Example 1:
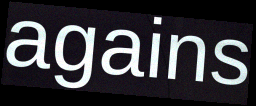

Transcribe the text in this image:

agains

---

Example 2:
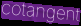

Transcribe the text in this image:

cotangent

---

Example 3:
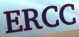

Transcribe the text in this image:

ERCC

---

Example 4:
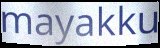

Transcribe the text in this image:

mayakku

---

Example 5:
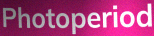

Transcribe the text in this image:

Photoperiod